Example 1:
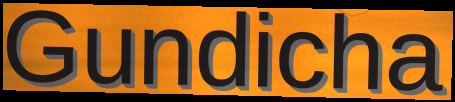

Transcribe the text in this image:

Gundicha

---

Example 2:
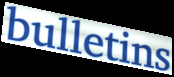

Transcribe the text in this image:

bulletins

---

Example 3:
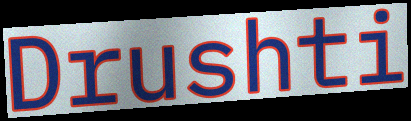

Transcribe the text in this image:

Drushti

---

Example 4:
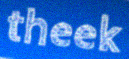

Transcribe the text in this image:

theek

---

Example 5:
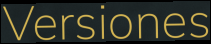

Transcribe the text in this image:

Versiones